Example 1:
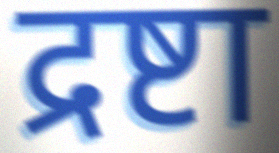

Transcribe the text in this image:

द्रष्टा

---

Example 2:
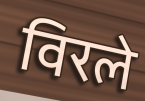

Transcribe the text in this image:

विरले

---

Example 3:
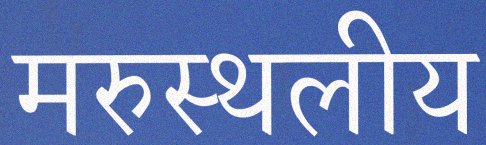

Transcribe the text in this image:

मरुस्थलीय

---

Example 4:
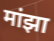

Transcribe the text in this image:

मांझा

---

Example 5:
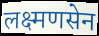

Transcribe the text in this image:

लक्ष्मणसेन